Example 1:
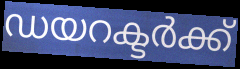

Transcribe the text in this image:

ഡയറക്ടർക്ക്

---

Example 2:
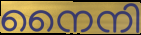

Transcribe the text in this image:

നൈനി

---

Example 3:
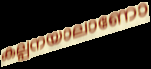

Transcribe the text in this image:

കല്പനയാലാണോ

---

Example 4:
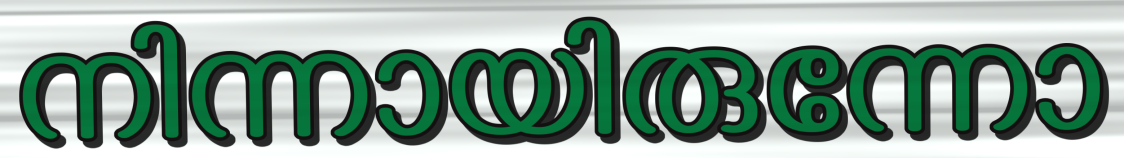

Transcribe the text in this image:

നിന്നായിരുന്നോ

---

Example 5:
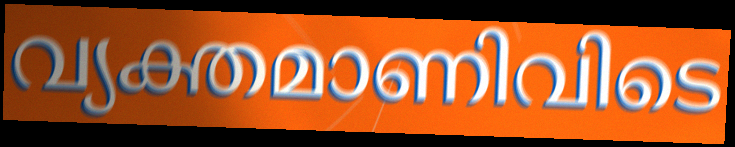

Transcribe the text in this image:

വ്യക്തമാണിവിടെ